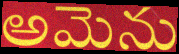
అమెను